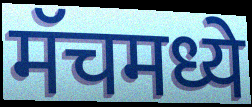
मॅचमध्ये